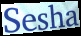
Sesha